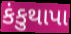
કંકુથાપા